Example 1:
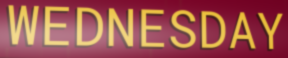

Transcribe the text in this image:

WEDNESDAY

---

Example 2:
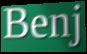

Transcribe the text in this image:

Benj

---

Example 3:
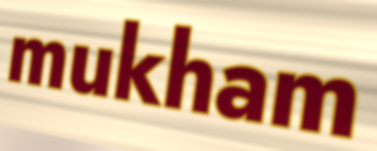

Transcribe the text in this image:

mukham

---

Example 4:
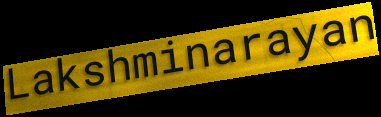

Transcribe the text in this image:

Lakshminarayan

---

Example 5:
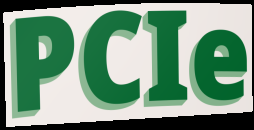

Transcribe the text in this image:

PCIe